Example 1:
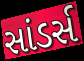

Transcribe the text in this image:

સાંડર્સ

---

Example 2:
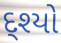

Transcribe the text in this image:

દ્શ્યો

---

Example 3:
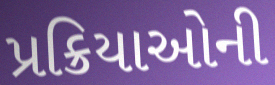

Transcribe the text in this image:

પ્રક્રિયાઓની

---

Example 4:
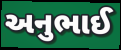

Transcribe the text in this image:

અનુભાઈ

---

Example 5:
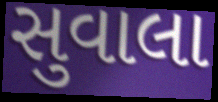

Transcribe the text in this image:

સુવાલા